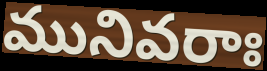
మునివరాః